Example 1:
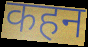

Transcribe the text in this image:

कहन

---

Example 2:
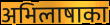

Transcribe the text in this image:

अभिलाषाका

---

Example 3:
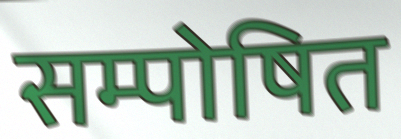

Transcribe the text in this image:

सम्पोषित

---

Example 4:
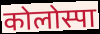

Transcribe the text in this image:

कोलोस्पा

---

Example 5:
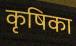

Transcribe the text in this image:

कृषिका